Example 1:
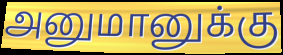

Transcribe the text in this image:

அனுமானுக்கு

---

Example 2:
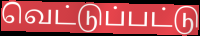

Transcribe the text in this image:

வெட்டுப்பட்டு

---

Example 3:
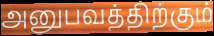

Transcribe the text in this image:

அனுபவத்திற்கும்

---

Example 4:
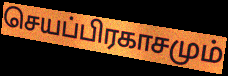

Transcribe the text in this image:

செயப்பிரகாசமும்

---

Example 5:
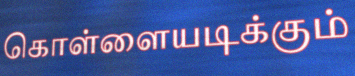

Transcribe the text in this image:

கொள்ளையடிக்கும்